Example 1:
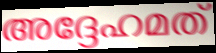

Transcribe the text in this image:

അദ്ദേഹമത്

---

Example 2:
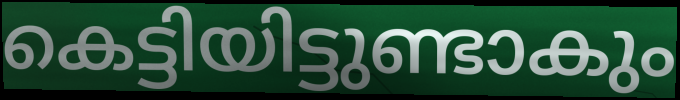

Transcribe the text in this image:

കെട്ടിയിട്ടുണ്ടാകും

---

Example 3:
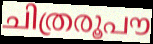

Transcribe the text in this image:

ചിത്രരൂപൗ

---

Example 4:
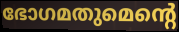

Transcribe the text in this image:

ഭോഗമതുമെന്റെ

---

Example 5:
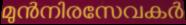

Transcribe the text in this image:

മുൻനിരസേവകർ